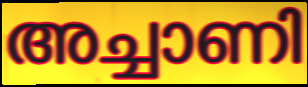
അച്ചാണി